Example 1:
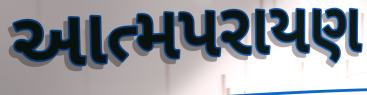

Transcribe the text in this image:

આત્મપરાયણ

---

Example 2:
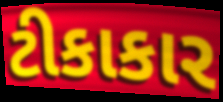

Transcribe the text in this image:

ટીકાકાર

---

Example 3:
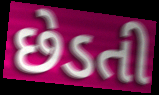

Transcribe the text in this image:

છેડતી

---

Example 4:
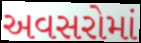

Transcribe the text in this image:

અવસરોમાં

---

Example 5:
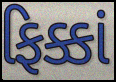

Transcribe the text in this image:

ફિક્કાં